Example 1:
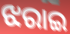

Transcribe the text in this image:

ଝରାଇ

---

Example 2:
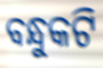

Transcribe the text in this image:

ବନ୍ଧୁକଟି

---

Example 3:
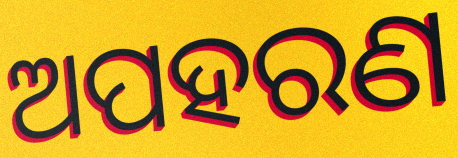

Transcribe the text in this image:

ଅପହରଣ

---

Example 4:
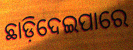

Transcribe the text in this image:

ଛାଡ଼ିଦେଇପାରେ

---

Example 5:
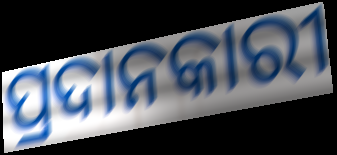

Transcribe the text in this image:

ପ୍ରଦାନକାରୀ